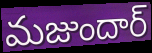
మజుందార్